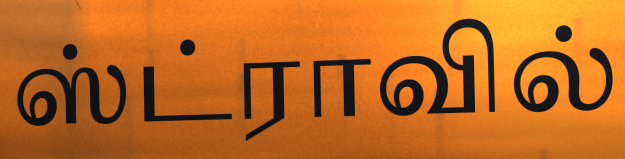
ஸ்ட்ராவில்